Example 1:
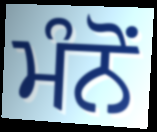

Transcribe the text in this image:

ਮੰਨੋਂ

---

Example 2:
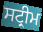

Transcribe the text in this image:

ਸਟ੍ਰੀਮ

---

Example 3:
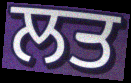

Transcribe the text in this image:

ਲਤ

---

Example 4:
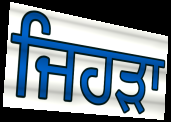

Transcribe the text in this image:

ਜਿਹੜਾ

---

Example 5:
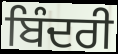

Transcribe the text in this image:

ਬਿੰਦਰੀ